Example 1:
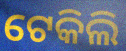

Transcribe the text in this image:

ଟେକିଲି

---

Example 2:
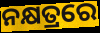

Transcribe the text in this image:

ନକ୍ଷତ୍ରରେ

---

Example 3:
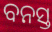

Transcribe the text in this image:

ବନସ୍ତ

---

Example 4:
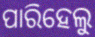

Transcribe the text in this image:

ପାରିହେଲୁ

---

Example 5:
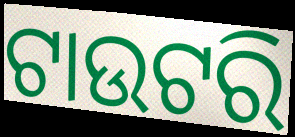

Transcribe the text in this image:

ଟାଉଟରି